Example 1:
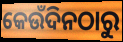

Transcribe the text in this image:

କେଉଁଦିନଠାରୁ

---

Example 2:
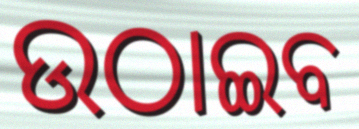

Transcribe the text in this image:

ଉଠାଇବ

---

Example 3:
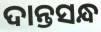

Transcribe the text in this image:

ଦାନ୍ତସନ୍ଧ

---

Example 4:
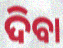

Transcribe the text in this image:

ଦିବା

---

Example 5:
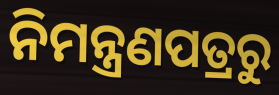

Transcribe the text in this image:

ନିମନ୍ତ୍ରଣପତ୍ରରୁ